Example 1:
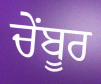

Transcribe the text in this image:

ਚੇਂਬੂਰ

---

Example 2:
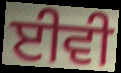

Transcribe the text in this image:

ਈਵੀ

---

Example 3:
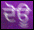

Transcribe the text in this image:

ਦੋਊ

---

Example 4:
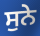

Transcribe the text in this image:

ਸੁਨੇ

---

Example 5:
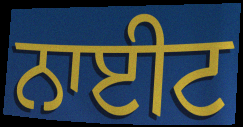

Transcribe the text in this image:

ਨਾਈਟ